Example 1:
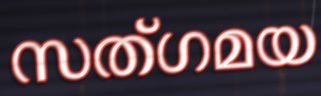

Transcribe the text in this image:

സത്ഗമയ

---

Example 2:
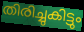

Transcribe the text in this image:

തിരിച്ചുകിട്ടും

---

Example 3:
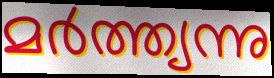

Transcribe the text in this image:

മർത്ത്യന്നു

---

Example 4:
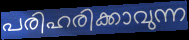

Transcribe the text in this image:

പരിഹരിക്കാവുന്ന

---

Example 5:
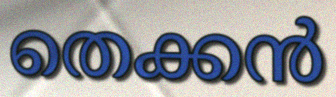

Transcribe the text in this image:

തെക്കൻ